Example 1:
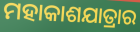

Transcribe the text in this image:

ମହାକାଶଯାତ୍ରାର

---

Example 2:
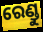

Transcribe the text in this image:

ରେଣ୍ଡୁ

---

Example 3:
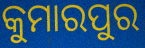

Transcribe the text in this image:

କୁମାରପୁର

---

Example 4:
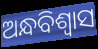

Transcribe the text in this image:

ଅନ୍ଧବିଶ୍ଵାସ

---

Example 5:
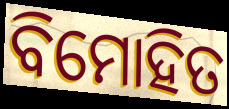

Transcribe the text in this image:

ବିମୋହିତ